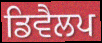
ਡਿਵੈਲਪ